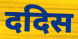
ददिस